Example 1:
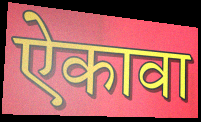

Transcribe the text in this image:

ऐकावा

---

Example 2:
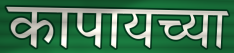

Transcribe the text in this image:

कापायच्या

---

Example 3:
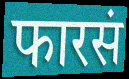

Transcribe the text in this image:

फारसं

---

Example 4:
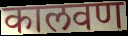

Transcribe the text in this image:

कालवण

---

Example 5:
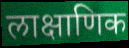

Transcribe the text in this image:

लाक्षाणिक